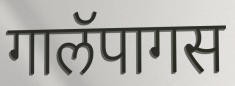
गालॅपागस